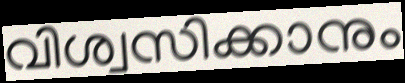
വിശ്വസിക്കാനും